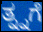
ತ್ನ್ನಗೆ